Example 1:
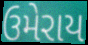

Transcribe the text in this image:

ઉમેરાય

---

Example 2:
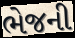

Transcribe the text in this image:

ભેજની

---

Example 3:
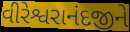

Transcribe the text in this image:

વીરેશ્વરાનંદજીને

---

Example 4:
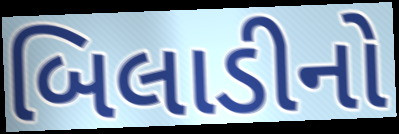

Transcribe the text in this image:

બિલાડીનો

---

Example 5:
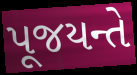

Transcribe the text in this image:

પૂજયન્તે